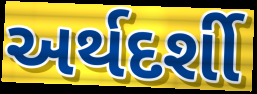
અર્થદર્શી